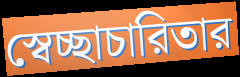
স্বেচ্ছাচারিতার